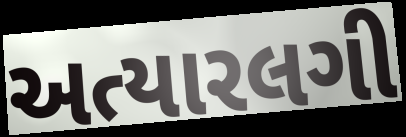
અત્યારલગી